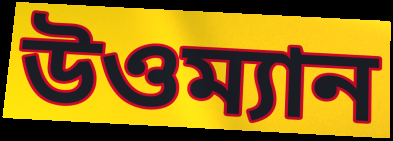
উওম্যান